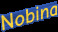
Nobina